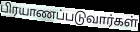
பிரயாணப்படுவார்கள்